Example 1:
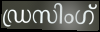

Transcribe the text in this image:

ഡ്രസിംഗ്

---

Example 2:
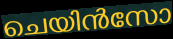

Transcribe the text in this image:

ചെയിൻസോ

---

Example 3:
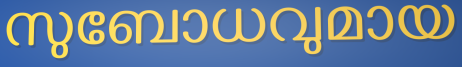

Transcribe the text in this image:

സുബോധവുമായ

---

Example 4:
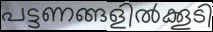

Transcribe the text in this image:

പട്ടണങ്ങളിൽക്കൂടി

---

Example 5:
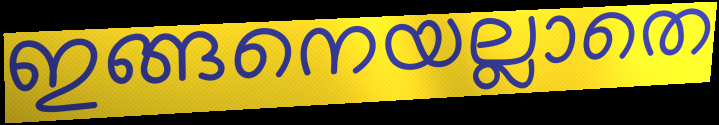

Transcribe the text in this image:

ഇങ്ങനെയല്ലാതെ